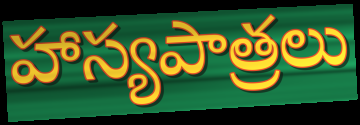
హాస్యపాత్రలు